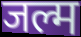
जल्म